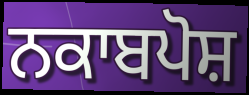
ਨਕਾਬਪੋਸ਼